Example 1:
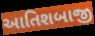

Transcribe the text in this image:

આતિશબાજી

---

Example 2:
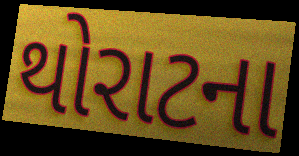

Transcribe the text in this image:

થોરાટના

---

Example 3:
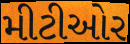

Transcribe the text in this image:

મીટીઓર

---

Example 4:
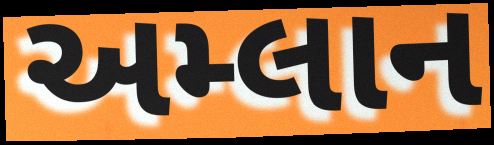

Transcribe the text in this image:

અમ્લાન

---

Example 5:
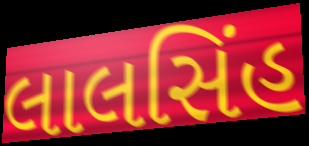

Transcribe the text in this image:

લાલસિંહ